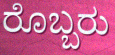
ರೊಬ್ಬರು